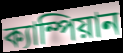
ক্যাম্পিয়ান